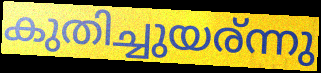
കുതിച്ചുയര്ന്നു